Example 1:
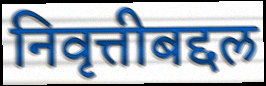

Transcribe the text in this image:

निवृत्तीबद्दल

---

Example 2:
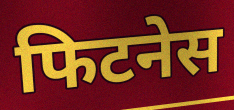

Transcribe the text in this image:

फिटनेस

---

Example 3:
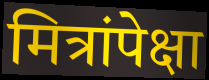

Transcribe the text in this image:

मित्रांपेक्षा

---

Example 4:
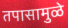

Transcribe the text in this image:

तपासामुळे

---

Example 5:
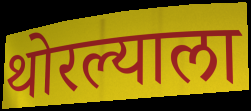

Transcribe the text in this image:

थोरल्याला